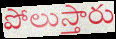
పోలుస్తారు